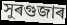
সুৰগুজাৰ